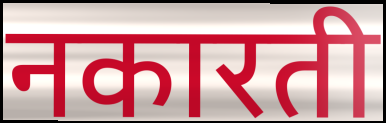
नकारती